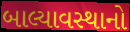
બાલ્યાવસ્થાનો